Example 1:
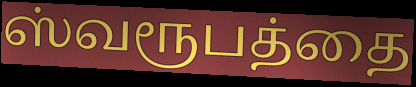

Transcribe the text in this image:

ஸ்வரூபத்தை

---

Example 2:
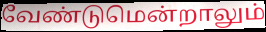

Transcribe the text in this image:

வேண்டுமென்றாலும்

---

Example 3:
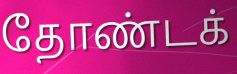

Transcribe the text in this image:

தோண்டக்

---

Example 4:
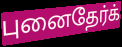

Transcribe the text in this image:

புனைதேர்க்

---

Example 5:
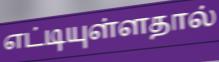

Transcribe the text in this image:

எட்டியுள்ளதால்